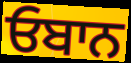
ਓਬਾਨ